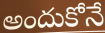
అందుకోనే